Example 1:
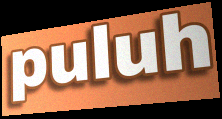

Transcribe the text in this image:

puluh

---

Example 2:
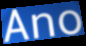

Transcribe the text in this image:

Ano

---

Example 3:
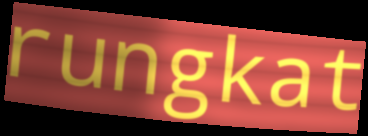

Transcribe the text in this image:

rungkat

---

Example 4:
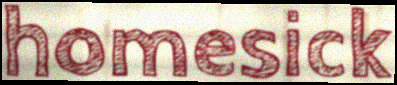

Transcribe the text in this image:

homesick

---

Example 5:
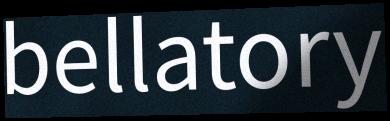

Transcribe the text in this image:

bellatory